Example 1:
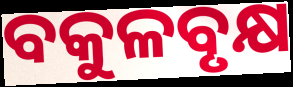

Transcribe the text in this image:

ବକୁଳବୃକ୍ଷ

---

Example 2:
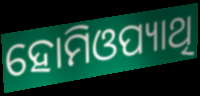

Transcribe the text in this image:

ହୋମିଓପ୍ୟାଥି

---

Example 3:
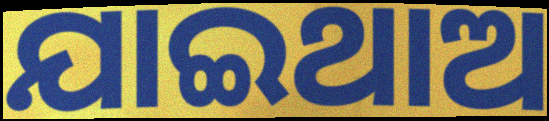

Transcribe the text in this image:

ଯାଇଥାଅ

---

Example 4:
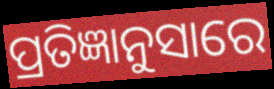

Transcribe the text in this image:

ପ୍ରତିଜ୍ଞାନୁସାରେ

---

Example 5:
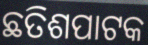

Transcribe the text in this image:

ଛତିଶପାଟକ